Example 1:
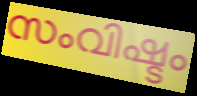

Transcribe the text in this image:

സംവിഷ്ടം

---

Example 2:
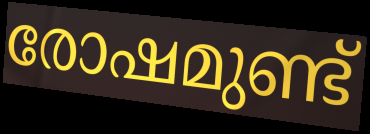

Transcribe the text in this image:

രോഷമുണ്ട്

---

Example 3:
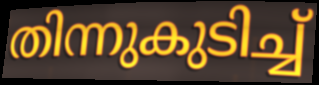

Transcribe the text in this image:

തിന്നുകുടിച്ച്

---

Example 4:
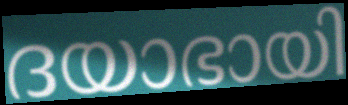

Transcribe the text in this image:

ദയാഭായി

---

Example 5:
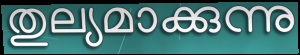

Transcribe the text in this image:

തുല്യമാക്കുന്നു